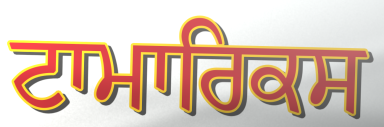
ਟਾਮਾਰਿਕਸ